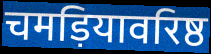
चमड़ियावरिष्ठ